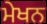
ਮੇਖਨ